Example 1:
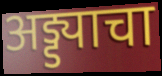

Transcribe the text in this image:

अड्ड्याचा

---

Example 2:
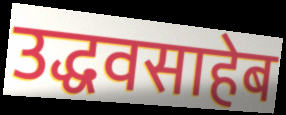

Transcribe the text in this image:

उद्धवसाहेब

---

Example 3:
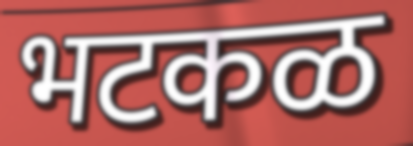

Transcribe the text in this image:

भटकळ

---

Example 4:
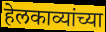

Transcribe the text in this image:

हेलकाव्यांच्या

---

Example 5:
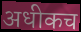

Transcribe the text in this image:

अधीकच